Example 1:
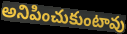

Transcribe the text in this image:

అనిపించుకుంటావు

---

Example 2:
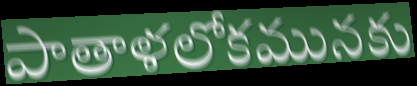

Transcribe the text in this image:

పాతాళలోకమునకు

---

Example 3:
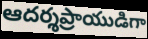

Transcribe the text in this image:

ఆదర్శప్రాయుడిగా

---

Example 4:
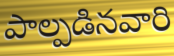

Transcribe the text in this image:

పాల్పడినవారి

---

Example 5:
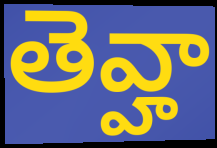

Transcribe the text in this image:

తెవ్హా